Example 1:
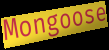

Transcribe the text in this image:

Mongoose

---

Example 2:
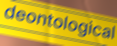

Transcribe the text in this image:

deontological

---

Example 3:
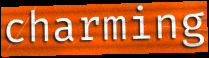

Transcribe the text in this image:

charming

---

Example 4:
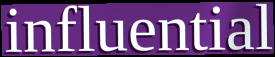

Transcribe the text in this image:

influential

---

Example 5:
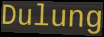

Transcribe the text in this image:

Dulung